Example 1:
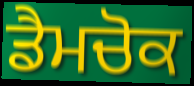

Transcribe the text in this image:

ਡੈਮਚੋਕ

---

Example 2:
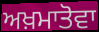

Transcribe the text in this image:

ਅਖ਼ਮਾਤੋਵਾ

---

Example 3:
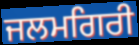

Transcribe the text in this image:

ਜਲਮਗਿਰੀ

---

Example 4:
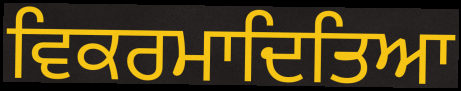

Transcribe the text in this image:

ਵਿਕਰਮਾਦਿਤਿਆ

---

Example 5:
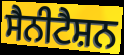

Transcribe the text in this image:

ਸੈਨੀਟੈਸ਼ਨ